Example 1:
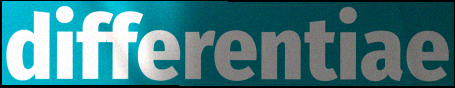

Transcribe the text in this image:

differentiae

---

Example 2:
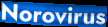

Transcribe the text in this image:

Norovirus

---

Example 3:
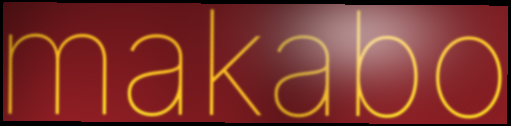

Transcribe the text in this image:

makabo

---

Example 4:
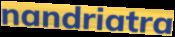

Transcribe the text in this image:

nandriatra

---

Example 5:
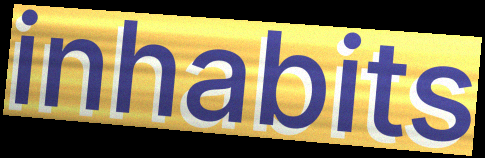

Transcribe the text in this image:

inhabits